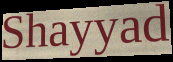
Shayyad